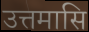
उत्तमासि